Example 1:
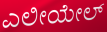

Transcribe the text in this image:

ಎಲೀಯೇಲ್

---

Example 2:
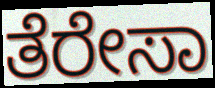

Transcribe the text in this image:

ತೆರೇಸಾ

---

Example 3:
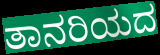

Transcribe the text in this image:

ತಾನರಿಯದ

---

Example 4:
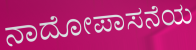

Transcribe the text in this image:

ನಾದೋಪಾಸನೆಯ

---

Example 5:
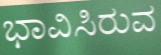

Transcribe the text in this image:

ಭಾವಿಸಿರುವ